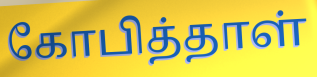
கோபித்தாள்